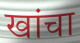
खांचा